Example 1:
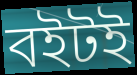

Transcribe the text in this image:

বইটই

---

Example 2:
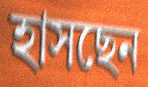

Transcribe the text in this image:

হাসছেন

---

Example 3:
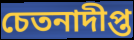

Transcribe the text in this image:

চেতনাদীপ্ত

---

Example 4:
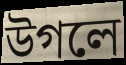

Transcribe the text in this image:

উগলে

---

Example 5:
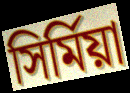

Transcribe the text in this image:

সির্মিয়া